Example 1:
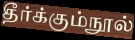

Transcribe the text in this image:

தீர்க்கும்நூல்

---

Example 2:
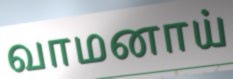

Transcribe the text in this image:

வாமனாய்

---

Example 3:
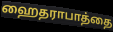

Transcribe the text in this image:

ஹைதராபாத்தை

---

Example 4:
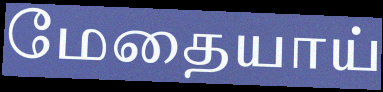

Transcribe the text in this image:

மேதையாய்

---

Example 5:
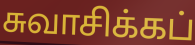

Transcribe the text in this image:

சுவாசிக்கப்